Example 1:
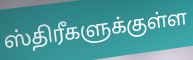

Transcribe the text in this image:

ஸ்திரீகளுக்குள்ள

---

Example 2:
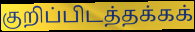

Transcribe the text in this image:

குறிப்பிடத்தக்கக்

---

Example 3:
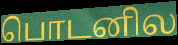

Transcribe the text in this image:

பொடனில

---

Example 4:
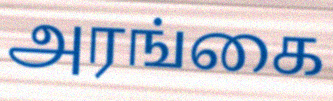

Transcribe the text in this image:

அரங்கை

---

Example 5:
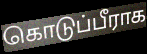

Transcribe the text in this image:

கொடுப்பீராக